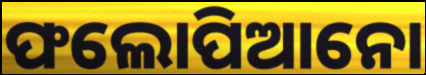
ଫଲୋପିଆନୋ